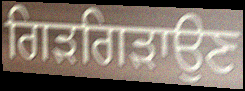
ਗਿੜਗਿੜਾਉਣ